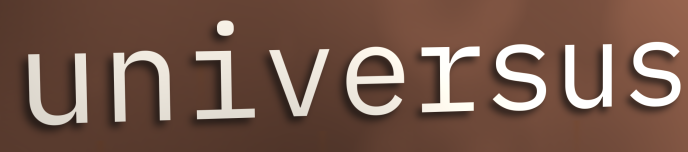
universus